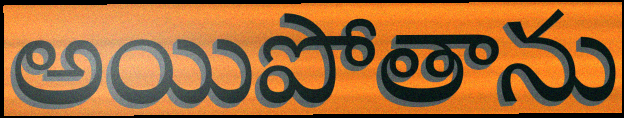
అయిపోతాను